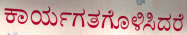
ಕಾರ್ಯಗತಗೊಳಿಸಿದರೆ